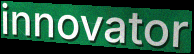
innovator